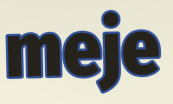
meje